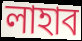
লাহাব